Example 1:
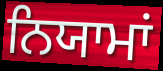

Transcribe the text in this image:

ਨਿਯਾਮਾਂ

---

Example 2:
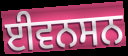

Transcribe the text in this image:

ਈਵਨਸਨ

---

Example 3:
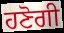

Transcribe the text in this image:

ਹਣੋਗੀ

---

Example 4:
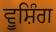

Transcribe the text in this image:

ਵੂਸ਼ਿੰਗ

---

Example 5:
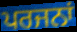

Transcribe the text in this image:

ਪਰਜਨਾਂ